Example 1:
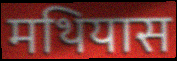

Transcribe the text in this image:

मथियास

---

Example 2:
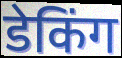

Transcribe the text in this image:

डेकिंग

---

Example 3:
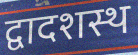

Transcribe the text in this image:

द्वादशस्थ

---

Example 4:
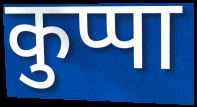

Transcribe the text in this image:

कुप्पा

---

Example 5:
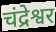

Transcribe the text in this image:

चंद्रेश्वर